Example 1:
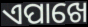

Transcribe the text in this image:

ଏପାଖେ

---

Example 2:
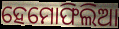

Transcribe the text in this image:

ହେମୋଫିଲିଆ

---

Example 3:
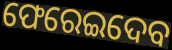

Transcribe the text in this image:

ଫେରେଇଦେବ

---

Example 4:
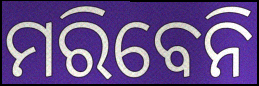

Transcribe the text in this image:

ମରିବେନି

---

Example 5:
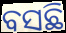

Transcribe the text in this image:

ବସଛି